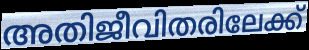
അതിജീവിതരിലേക്ക്